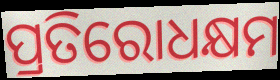
ପ୍ରତିରୋଧକ୍ଷମ